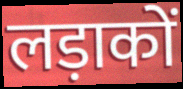
लड़ाकों